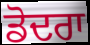
ਡੋਦਰਾ